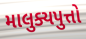
માલુક્યપુત્તો